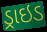
ડ્રાઇડ